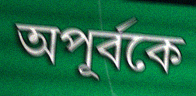
অপূর্বকে